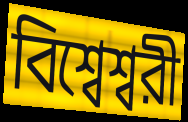
বিশ্বেশ্বরী